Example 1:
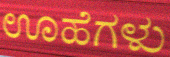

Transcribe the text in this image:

ಊಹೆಗಳು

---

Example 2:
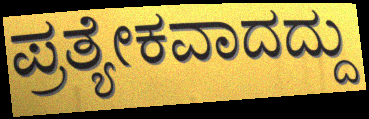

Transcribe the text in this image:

ಪ್ರತ್ಯೇಕವಾದದ್ದು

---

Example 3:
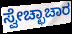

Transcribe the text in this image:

ಸ್ವೇಚ್ಛಾಚಾರ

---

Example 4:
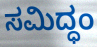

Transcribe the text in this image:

ಸಮಿದ್ಧಂ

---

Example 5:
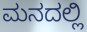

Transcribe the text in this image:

ಮನದಲ್ಲಿ